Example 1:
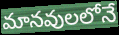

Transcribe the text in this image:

మానవులలోనే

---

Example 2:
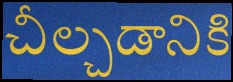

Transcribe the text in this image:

చీల్చడానికి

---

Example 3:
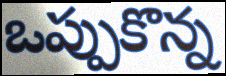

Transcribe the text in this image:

ఒప్పుకొన్న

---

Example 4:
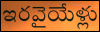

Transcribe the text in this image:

ఇరవైయేళ్లు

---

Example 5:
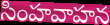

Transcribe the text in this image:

సింహవాహన